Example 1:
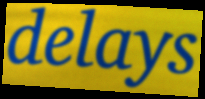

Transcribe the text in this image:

delays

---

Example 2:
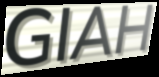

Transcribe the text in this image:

GIAH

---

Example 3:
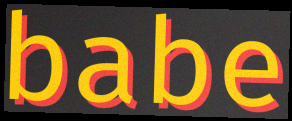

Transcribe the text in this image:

babe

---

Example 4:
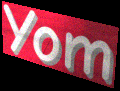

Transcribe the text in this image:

Yom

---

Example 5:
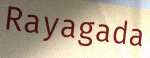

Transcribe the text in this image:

Rayagada